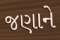
જણાને